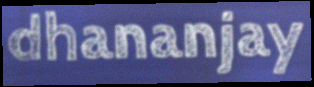
dhananjay